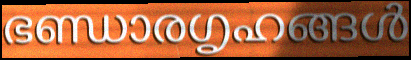
ഭണ്ഡാരഗൃഹങ്ങൾ